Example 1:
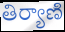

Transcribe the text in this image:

తిర్యాణి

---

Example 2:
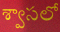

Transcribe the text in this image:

శ్వాసలో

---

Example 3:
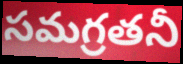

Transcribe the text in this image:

సమగ్రతనీ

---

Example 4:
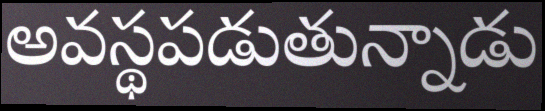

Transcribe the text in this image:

అవస్థపడుతున్నాడు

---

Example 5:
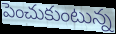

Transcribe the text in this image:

పెంచుకుంటున్న